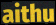
aithu